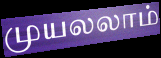
முயலலாம்